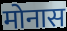
मोनास